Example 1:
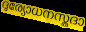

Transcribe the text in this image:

ദുര്യോധനസ്തദാ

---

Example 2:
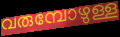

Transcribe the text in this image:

വരുമ്പോഴുള്ള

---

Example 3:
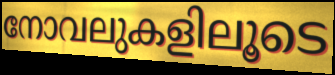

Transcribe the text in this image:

നോവലുകളിലൂടെ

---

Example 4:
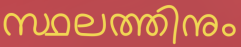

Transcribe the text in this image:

സ്ഥലത്തിനും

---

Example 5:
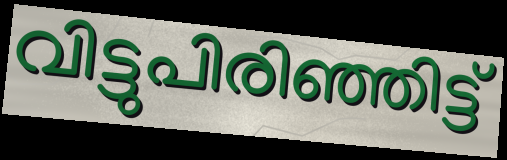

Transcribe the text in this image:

വിട്ടുപിരിഞ്ഞിട്ട്